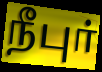
நீபுர்